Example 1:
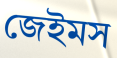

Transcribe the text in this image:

জেইমস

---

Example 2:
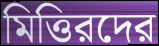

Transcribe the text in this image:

মিত্তিরদের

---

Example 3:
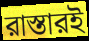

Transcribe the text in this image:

রাস্তারই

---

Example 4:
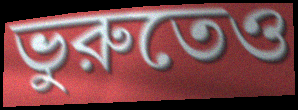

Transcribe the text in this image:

ভুরুতেও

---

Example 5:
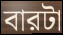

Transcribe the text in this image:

বারটা